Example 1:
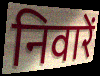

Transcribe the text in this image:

निवारें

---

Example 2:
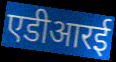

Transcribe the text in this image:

एडीआरई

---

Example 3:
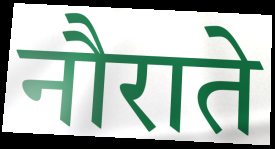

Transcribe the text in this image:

नौराते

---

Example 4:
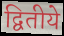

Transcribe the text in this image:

द्वितीये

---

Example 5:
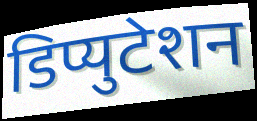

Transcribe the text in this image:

डिप्युटेशन